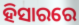
ହିସାରରେ